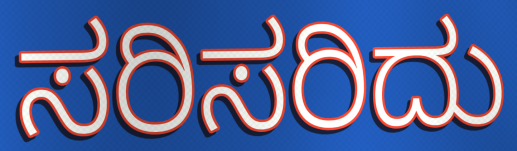
ಸರಿಸರಿದು